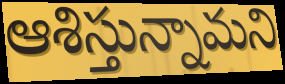
ఆశిస్తున్నామని